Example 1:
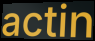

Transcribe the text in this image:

actin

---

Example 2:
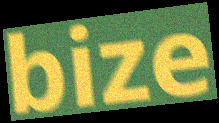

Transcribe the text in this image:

bize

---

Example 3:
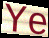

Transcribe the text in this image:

Ye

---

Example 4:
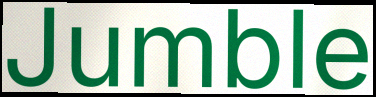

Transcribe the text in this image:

Jumble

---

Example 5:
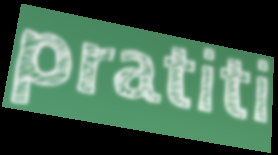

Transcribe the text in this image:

pratiti